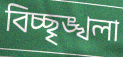
বিচ্ছৃঙ্খলা